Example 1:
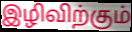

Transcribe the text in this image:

இழிவிற்கும்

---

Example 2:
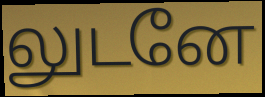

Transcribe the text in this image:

லுடனே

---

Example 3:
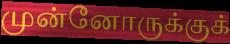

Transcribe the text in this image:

முன்னோருக்குக்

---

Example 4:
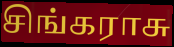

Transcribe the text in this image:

சிங்கராசு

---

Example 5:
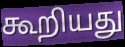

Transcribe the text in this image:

கூறியது